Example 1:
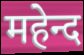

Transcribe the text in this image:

महेन्द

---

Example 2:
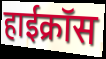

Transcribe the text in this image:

हाईक्रॉस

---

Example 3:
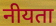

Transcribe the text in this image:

नीयता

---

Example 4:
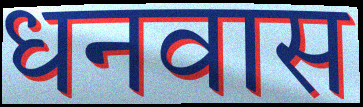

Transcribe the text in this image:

धनवास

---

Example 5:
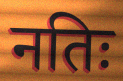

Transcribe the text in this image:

नतिः